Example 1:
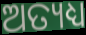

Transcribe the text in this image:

ଅତ୍ୟଧ୍ୟ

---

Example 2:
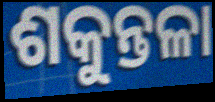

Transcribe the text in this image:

ଶକୁନ୍ତଳା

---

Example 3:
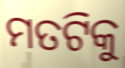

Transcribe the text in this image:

ମତଟିକୁ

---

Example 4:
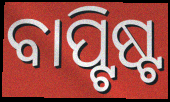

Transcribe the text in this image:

ବାପ୍ଟିଷ୍ଟ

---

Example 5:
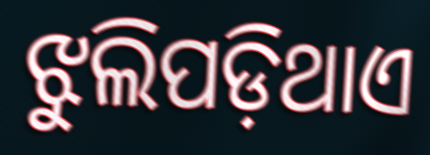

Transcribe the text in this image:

ଝୁଲିପଡ଼ିଥାଏ